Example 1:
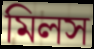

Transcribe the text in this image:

মিলস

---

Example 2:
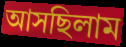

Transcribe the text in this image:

আসছিলাম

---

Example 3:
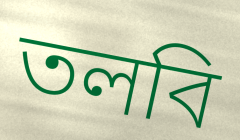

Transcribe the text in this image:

তলবি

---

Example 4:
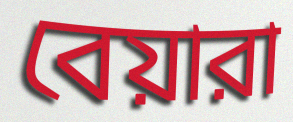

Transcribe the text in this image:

বেয়ারা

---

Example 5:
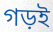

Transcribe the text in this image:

গড়ই